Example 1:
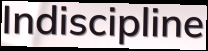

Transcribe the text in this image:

Indiscipline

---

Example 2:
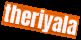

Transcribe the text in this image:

theriyala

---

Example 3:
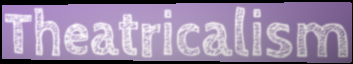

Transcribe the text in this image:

Theatricalism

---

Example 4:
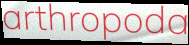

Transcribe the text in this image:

arthropoda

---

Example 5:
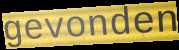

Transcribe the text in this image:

gevonden